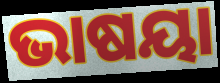
ଭାଷୟା